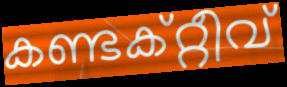
കണ്ടക്റ്റീവ്